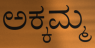
ಅಕ್ಕಮ್ಮ